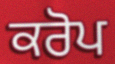
ਕਰੋਪ